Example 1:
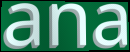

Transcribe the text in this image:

ana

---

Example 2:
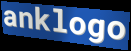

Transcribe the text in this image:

anklogo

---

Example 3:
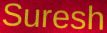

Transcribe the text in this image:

Suresh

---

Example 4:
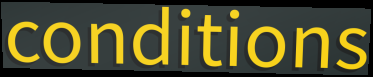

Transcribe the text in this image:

conditions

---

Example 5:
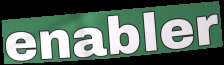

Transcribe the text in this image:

enabler